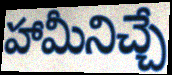
హామీనిచ్చే